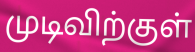
முடிவிற்குள்